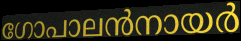
ഗോപാലൻനായർ